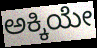
ಅಕ್ಕಿಯೇ